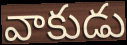
వాకుడు